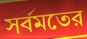
সর্বমতের